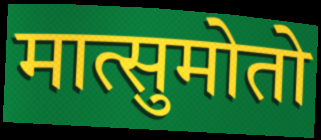
मात्सुमोतो